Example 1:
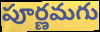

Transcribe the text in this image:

పూర్ణమగు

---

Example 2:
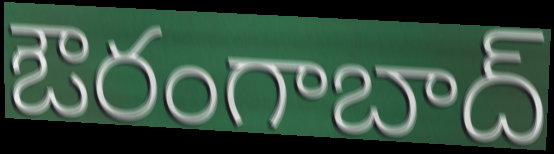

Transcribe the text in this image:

ఔరంగాబాద్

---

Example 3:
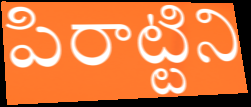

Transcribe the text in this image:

పిరాట్టిని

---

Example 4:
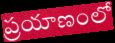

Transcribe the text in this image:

ప్రయాణంలో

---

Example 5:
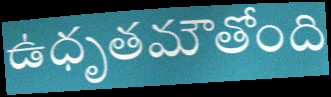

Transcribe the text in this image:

ఉధృతమౌతోంది